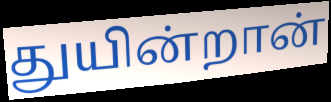
துயின்றான்